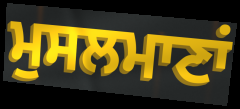
ਮੁਸਲਮਾਣਾਂ